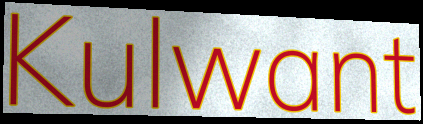
Kulwant